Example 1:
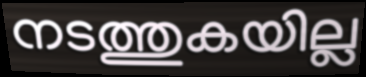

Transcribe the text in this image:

നടത്തുകയില്ല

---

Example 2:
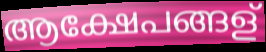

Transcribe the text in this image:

ആക്ഷേപങ്ങള്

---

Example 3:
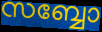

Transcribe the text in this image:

സബ്ബോ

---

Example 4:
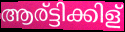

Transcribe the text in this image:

ആര്ട്ടിക്കിള്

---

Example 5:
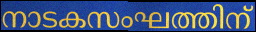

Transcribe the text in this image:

നാടകസംഘത്തിന്